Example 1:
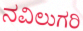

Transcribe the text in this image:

ನವಿಲುಗರಿ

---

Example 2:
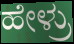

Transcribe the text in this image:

ಹೇಳ್ರು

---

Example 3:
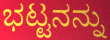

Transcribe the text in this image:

ಭಟ್ಟನನ್ನು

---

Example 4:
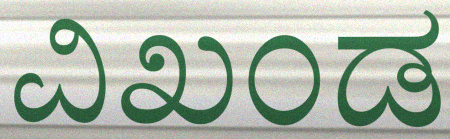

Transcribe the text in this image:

ವಿಖಂಡ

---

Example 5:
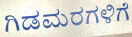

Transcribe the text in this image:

ಗಿಡಮರಗಳಿಗೆ